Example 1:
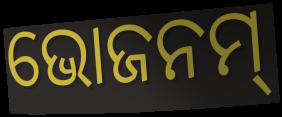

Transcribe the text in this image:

ଭୋଜନମ୍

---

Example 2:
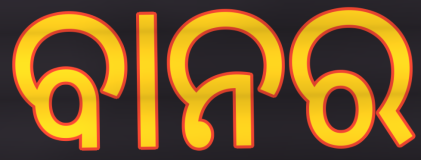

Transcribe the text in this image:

ବାନର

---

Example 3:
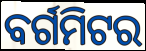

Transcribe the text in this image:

ବର୍ଗମିଟର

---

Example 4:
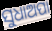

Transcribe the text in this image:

ସୁଧାଅପା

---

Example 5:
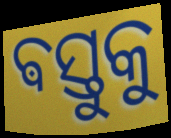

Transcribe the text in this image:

ଵସ୍ତୁକୁ